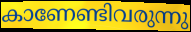
കാണേണ്ടിവരുന്നു